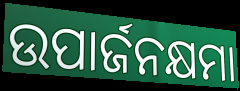
ଉପାର୍ଜନକ୍ଷମା